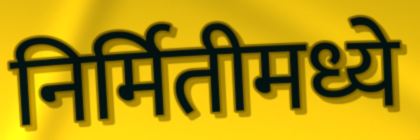
निर्मितीमध्ये